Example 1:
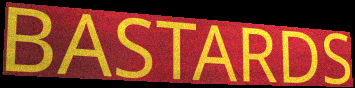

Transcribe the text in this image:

BASTARDS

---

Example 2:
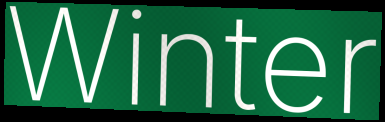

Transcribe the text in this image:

Winter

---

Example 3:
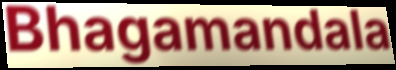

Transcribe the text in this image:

Bhagamandala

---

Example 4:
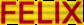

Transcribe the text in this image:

FELIX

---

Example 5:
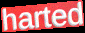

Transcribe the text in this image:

harted